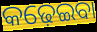
କଢ଼େଇବା